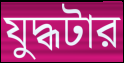
যুদ্ধটার